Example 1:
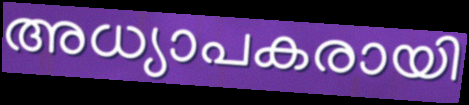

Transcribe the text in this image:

അധ്യാപകരായി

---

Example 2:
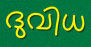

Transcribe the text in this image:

ദുവിധ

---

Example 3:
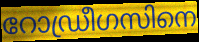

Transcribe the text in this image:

റോഡ്രീഗസിനെ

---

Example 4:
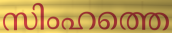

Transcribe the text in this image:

സിംഹത്തെ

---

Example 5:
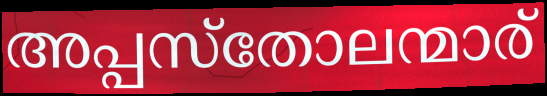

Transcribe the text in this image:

അപ്പസ്തോലന്മാര്